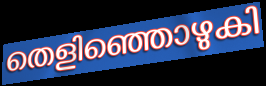
തെളിഞ്ഞൊഴുകി